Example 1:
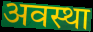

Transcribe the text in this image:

अवस्‍था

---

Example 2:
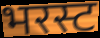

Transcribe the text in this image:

भरस्ट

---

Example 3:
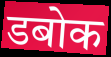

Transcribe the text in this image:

डबोक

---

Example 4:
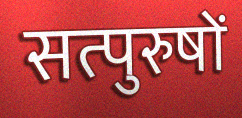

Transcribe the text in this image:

सत्पुरुषों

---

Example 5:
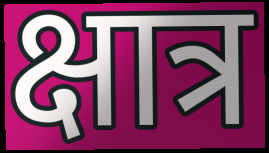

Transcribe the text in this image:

क्षात्र